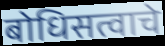
बोधिसत्वाचे